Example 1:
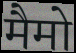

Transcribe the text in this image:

मैमो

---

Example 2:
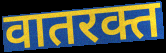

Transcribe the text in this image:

वातरक्त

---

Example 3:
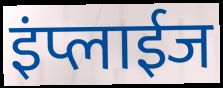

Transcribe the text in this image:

इंप्लाईज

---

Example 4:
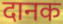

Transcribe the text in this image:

दानक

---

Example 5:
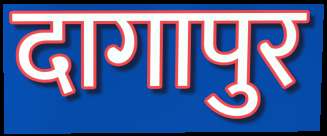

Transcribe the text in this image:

दागापुर